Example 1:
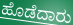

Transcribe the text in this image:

ಹೊಡೆದಾರು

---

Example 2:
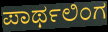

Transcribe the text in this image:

ಪಾರ್ಥಲಿಂಗ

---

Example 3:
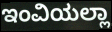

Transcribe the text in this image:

ಇಂವಿಯಲ್ಲಾ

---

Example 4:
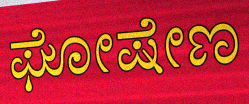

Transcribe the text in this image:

ಘೋಷೇಣ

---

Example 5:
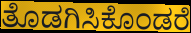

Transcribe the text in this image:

ತೊಡಗಿಸಿಕೊಂಡರೆ